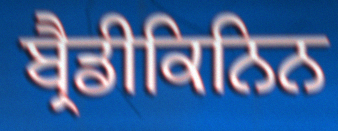
ਬ੍ਰੈਡੀਕਿਨਿਨ